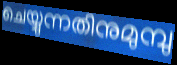
ചെയ്യുന്നതിനുമുമ്പു